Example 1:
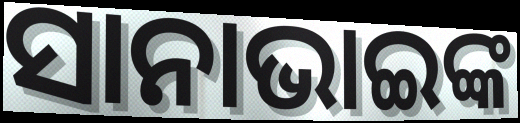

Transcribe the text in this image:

ସାନାଭାଇଙ୍କ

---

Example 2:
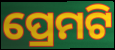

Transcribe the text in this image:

ପ୍ରେମଟି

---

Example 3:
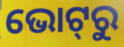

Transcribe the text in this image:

ଭୋଟ୍‌ରୁ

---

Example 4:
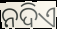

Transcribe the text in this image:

ନଦିଏ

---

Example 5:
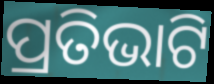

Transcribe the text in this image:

ପ୍ରତିଭାଟି